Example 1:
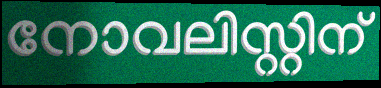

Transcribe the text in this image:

നോവലിസ്റ്റിന്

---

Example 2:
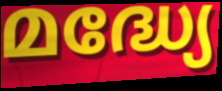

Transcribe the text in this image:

മദ്ധ്യേ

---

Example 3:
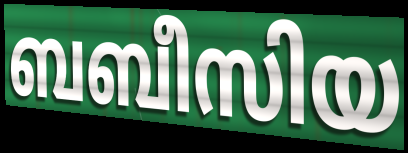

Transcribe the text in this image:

ബബീസിയ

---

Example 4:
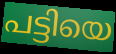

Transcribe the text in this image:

പട്ടിയെ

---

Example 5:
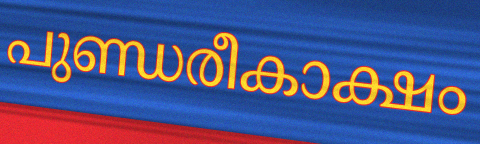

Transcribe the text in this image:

പുണ്ഡരീകാക്ഷം